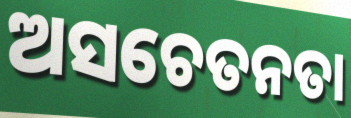
ଅସଚେତନତା